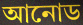
আনোড